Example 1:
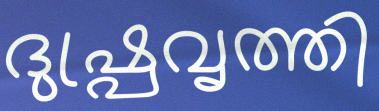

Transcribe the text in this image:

ദുഷ്പ്രവൃത്തി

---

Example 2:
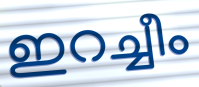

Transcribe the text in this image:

ഇറച്ചീം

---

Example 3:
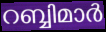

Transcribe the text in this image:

റബ്ബിമാർ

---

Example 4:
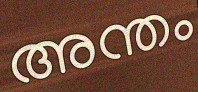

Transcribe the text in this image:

അന്തം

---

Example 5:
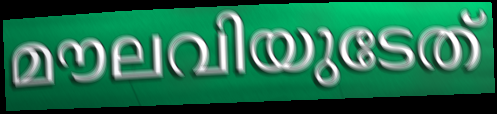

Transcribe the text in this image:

മൗലവിയുടേത്